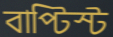
বাপ্টিস্ট